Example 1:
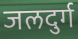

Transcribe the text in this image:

जलदुर्ग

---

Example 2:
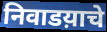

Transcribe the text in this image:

निवाडय़ाचे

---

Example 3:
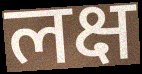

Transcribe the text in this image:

लक्ष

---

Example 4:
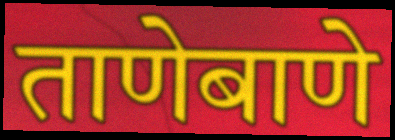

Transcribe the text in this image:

ताणेबाणे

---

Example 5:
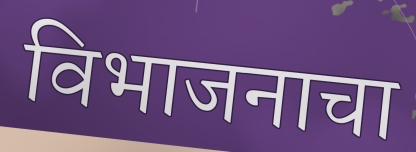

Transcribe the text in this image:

विभाजनाचा